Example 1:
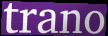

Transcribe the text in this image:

trano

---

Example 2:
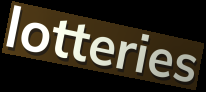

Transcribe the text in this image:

lotteries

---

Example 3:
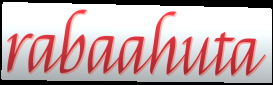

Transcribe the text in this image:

rabaahuta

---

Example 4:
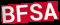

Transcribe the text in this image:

BFSA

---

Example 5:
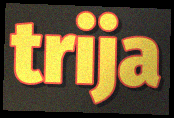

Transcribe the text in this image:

trija